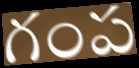
గంప